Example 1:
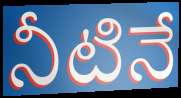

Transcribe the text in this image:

నీటినే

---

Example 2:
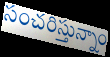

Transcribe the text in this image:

సంచరిస్తున్నాం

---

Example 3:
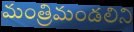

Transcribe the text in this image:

మంత్రిమండలిని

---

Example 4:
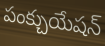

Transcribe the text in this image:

పంక్చుయేషన్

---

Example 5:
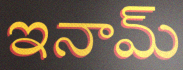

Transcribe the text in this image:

ఇనామ్